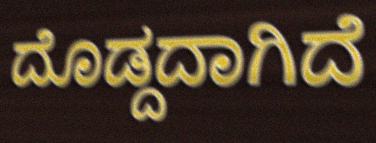
ದೊಡ್ದದಾಗಿದೆ